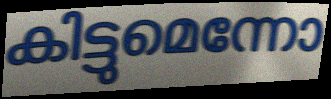
കിട്ടുമെന്നോ